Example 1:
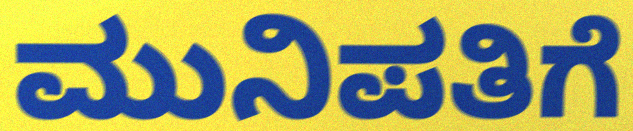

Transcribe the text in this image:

ಮುನಿಪತಿಗೆ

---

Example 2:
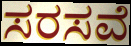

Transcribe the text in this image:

ಸರಸವೆ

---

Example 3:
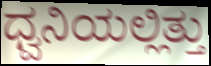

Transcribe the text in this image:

ಧ್ವನಿಯಲ್ಲಿತ್ತು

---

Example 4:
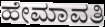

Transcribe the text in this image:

ಹೇಮಾವತಿ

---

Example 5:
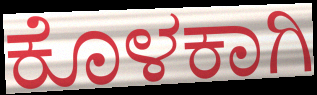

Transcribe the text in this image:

ಕೊಳಕಾಗಿ